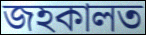
জহকালত